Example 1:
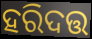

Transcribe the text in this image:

ହରିଦତ୍ତ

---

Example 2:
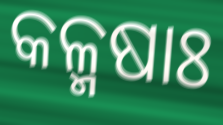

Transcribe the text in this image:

କଳ୍ମଷାଃ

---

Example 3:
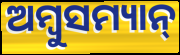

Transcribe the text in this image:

ଅମ୍ବୁସମ୍ୟାନ୍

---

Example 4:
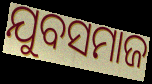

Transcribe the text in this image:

ଯୁବସମାଜ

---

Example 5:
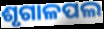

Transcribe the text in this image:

ଶୃଗାଳପଲ